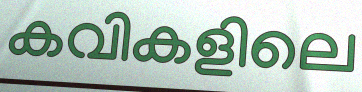
കവികളിലെ